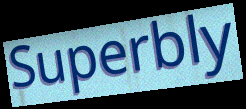
Superbly